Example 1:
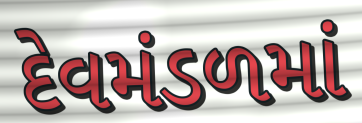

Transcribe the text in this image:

દેવમંડળમાં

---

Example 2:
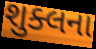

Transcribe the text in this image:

શુક્લના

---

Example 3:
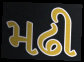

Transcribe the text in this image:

મઢી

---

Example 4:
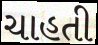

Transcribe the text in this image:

ચાહતી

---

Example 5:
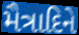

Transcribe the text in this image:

મૈત્રાદિને